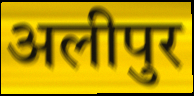
अलीपुर